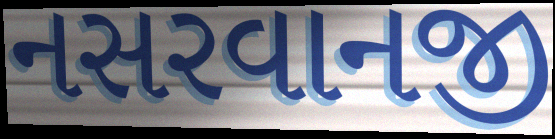
નસરવાનજી